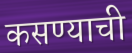
कसण्याची